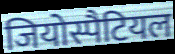
जियोस्पैटियल